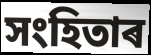
সংহিতাৰ